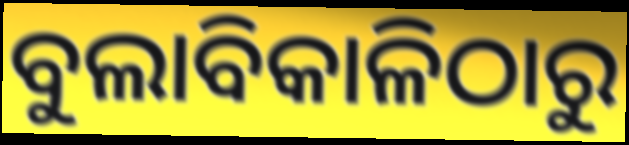
ବୁଲାବିକାଳିଠାରୁ